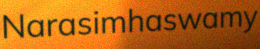
Narasimhaswamy